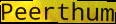
Peerthum